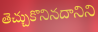
తెచ్చుకొనినదానిని